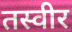
तस्वीर